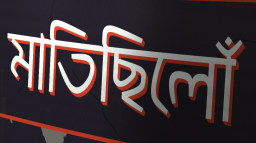
মাতিছিলোঁ